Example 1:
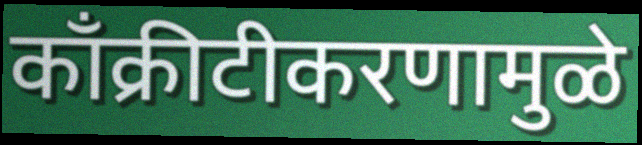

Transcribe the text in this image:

काँक्रीटीकरणामुळे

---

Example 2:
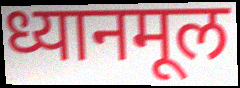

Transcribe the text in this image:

ध्यानमूल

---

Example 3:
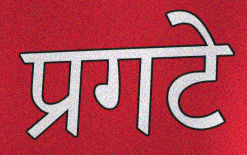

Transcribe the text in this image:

प्रगटे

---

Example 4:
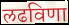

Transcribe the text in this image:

लढविणा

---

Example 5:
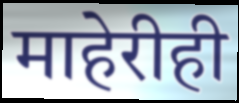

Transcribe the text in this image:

माहेरीही